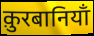
क़ुरबानियाँ